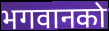
भगवानको